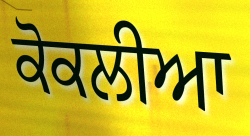
ਕੋਕਲੀਆ